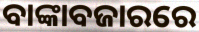
ବାଙ୍କାବଜାରରେ